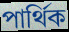
পার্থিক